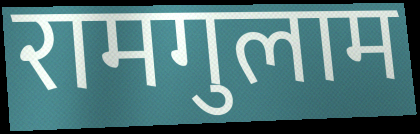
रामगुलाम